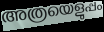
അത്രയെളുപ്പം